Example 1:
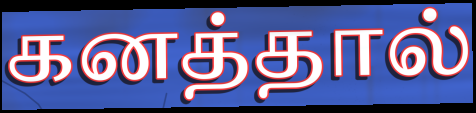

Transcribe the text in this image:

கனத்தால்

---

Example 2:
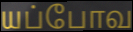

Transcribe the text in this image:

யப்போவ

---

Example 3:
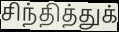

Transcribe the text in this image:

சிந்தித்துக்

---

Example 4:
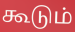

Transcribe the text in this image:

கூடும்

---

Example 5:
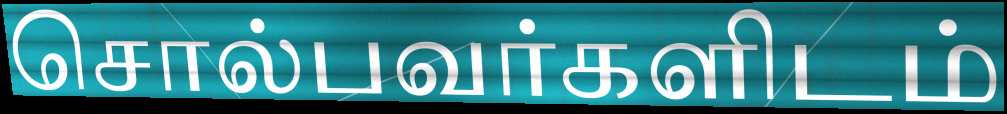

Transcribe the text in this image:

சொல்பவர்களிடம்